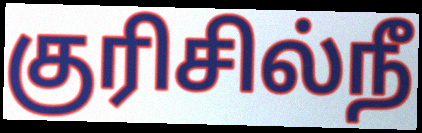
குரிசில்நீ